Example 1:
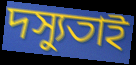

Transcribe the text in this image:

দস্যুতাই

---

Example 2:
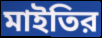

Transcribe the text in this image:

মাইতির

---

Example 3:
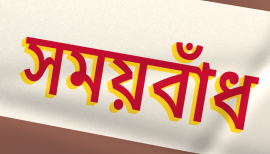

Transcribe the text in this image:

সময়বাঁধ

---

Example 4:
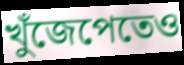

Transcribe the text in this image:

খুঁজেপেতেও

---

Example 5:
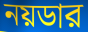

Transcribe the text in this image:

নয়ডার